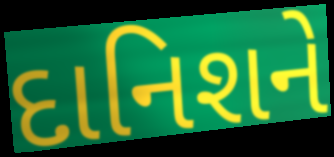
દાનિશને